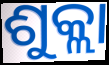
ଶୁକ୍ଲା